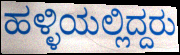
ಹಳ್ಳಿಯಲ್ಲಿದ್ದರು